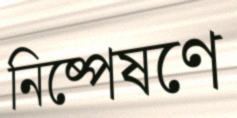
নিষ্পেষণে